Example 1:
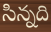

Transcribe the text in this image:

సిన్నది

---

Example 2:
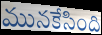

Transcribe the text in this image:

మునకేసింది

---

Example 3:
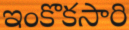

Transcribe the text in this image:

ఇంకొకసారి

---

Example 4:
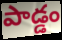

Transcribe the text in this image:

పాడ్డం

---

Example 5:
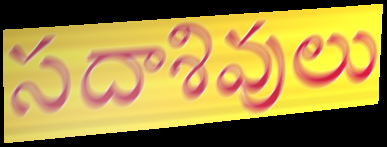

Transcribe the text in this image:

సదాశివులు